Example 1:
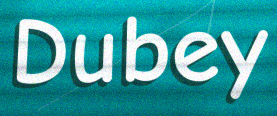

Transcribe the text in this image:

Dubey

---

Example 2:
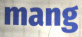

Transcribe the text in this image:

mang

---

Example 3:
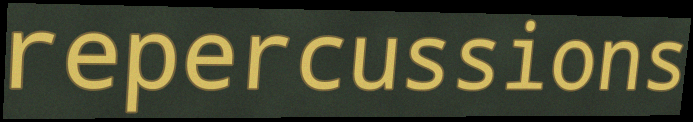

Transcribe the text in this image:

repercussions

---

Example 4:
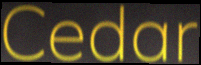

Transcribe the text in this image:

Cedar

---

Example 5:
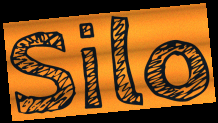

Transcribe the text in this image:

Silo